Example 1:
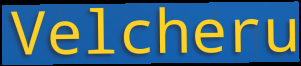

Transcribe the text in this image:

Velcheru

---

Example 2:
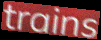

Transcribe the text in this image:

trains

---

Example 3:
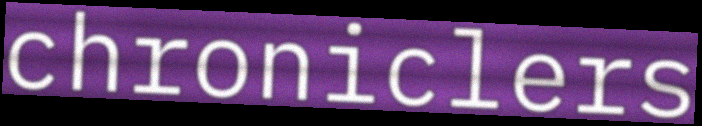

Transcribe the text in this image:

chroniclers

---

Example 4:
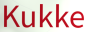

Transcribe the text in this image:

Kukke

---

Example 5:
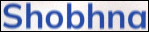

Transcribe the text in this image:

Shobhna